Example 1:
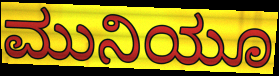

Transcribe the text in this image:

ಮುನಿಯೂ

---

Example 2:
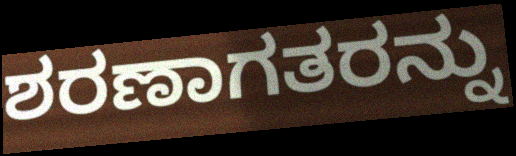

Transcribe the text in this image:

ಶರಣಾಗತರನ್ನು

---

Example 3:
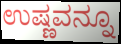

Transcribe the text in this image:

ಉಷ್ಣವನ್ನೂ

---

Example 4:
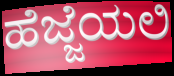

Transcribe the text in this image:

ಹೆಜ್ಜೆಯಲಿ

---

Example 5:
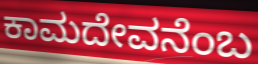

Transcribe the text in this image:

ಕಾಮದೇವನೆಂಬ